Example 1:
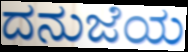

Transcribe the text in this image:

ದನುಜೆಯ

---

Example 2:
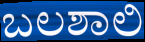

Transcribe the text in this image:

ಬಲಶಾಲಿ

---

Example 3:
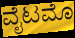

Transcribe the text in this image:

ವೈಟಮೊ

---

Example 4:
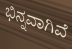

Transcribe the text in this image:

ಭಿನ್ನವಾಗಿವೆ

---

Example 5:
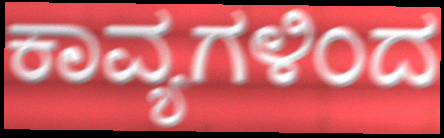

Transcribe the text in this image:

ಕಾವ್ಯಗಳಿಂದ